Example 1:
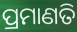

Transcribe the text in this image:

ପ୍ରମାଣତି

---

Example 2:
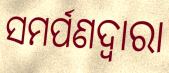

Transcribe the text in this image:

ସମର୍ପଣଦ୍ୱାରା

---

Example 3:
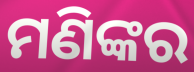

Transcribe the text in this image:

ମଣିଙ୍କର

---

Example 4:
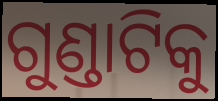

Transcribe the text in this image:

ଗୁଣ୍ଡାଟିକୁ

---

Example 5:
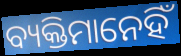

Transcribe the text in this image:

ବ୍ୟକ୍ତିମାନେହିଁ